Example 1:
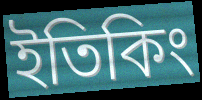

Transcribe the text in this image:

ইতিকিং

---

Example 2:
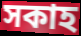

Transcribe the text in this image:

সকাহ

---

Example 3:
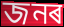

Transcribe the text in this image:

জনৰ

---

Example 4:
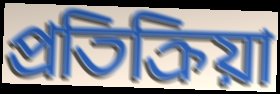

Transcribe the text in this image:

প্ৰতিক্ৰিয়া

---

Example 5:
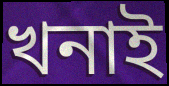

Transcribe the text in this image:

খনাই